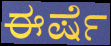
ಈರ್ಷೆ